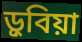
ড়ুবিয়া